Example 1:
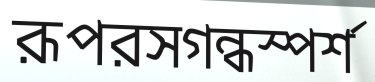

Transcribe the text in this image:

রূপরসগন্ধস্পর্শ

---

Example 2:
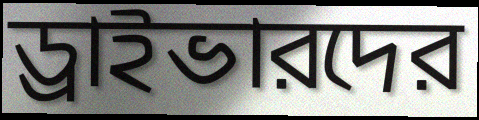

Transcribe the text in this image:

ড্রাইভারদের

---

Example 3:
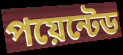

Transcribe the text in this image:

পয়েন্টেড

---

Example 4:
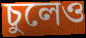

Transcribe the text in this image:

চুলেও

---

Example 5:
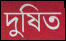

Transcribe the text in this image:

দুষিত